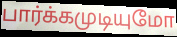
பார்க்கமுடியுமோ